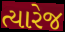
ત્યારેજ